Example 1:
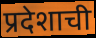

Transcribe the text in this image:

प्रदेशाची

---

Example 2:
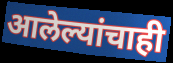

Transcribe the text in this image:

आलेल्यांचाही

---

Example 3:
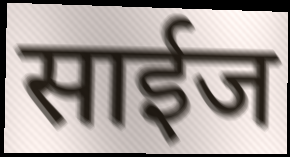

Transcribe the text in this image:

साईज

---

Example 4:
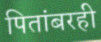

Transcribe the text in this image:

पितांबरही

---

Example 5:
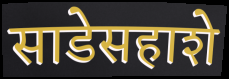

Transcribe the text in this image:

साडेसहाशे